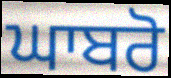
ਘਾਬਰੋ